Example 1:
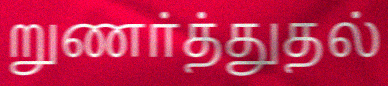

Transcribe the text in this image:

றுணர்த்துதல்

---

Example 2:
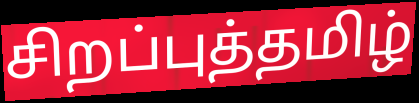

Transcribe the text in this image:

சிறப்புத்தமிழ்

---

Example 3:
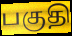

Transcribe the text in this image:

பகுதி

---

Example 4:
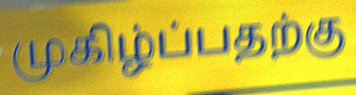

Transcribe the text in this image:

முகிழ்ப்பதற்கு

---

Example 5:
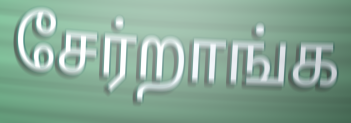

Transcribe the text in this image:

சேர்றாங்க